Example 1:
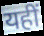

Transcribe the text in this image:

यहीं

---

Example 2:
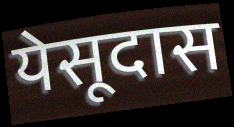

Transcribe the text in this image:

येसूदास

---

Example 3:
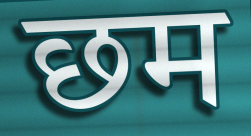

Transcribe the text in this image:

छम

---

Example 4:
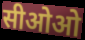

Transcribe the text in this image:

सीओओ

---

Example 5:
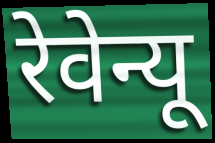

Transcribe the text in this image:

रेवेन्यू